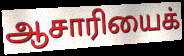
ஆசாரியைக்